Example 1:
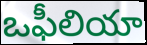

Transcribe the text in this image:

ఒఫీలియా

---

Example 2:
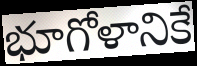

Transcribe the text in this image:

భూగోళానికే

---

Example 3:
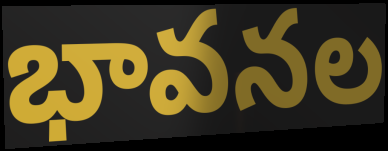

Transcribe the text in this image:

భావనల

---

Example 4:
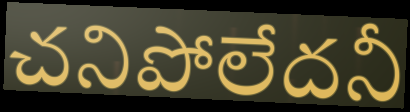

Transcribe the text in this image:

చనిపోలేదనీ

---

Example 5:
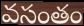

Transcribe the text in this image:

వసంతం